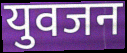
युवजन